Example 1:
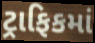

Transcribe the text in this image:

ટ્રાફિકમાં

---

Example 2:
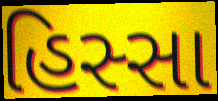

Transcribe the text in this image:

હિસ્સા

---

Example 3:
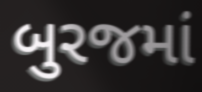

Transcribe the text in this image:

બુરજમાં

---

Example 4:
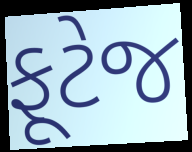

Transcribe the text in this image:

ફૂટેજ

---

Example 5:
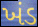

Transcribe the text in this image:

ખંડ